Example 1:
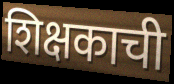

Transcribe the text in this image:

शिक्षकाची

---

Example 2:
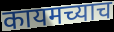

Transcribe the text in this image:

कायमच्याच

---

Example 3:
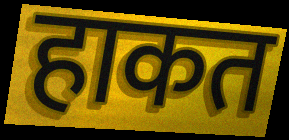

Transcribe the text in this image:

हाकत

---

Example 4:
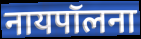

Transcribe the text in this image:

नायपॉलना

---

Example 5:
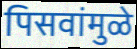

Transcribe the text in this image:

पिसवांमुळे